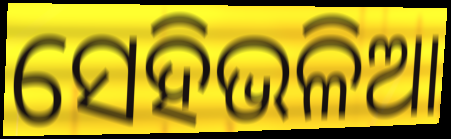
ସେହିଭଳିଆ